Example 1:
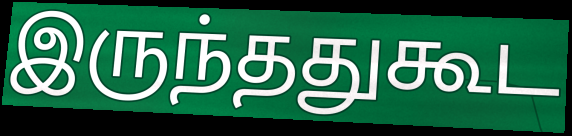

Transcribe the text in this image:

இருந்ததுகூட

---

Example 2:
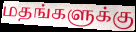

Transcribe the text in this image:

மதங்களுக்கு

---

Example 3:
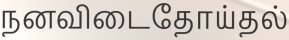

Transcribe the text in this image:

நனவிடைதோய்தல்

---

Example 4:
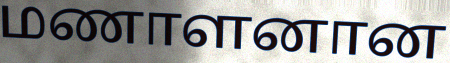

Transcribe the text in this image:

மணாளனான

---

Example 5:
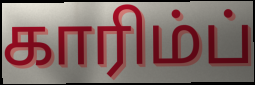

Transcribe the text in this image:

காரிம்ப்